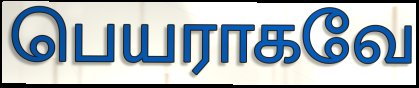
பெயராகவே